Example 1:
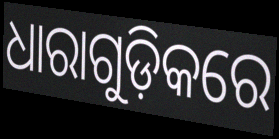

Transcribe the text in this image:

ଧାରାଗୁଡ଼ିକରେ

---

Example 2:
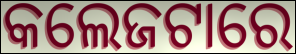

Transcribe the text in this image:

କଲେଜଟାରେ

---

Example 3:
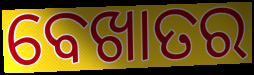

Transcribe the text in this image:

ବେଖାତର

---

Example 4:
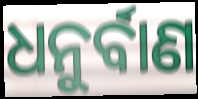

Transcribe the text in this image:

ଧନୁର୍ବାଣ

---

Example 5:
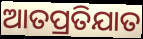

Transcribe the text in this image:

ଆତପ୍ରତିଯାତ